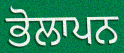
ਭੋਲਾਪਨ